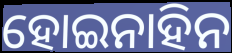
ହୋଇନାହିନ